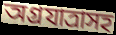
অগ্রযাত্রাসহ